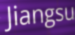
Jiangsu